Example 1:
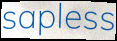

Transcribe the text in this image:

sapless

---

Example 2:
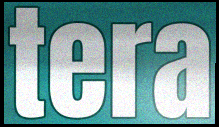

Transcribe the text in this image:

tera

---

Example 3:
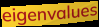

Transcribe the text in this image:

eigenvalues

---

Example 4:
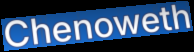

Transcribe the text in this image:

Chenoweth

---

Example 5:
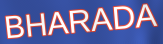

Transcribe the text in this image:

BHARADA